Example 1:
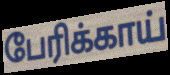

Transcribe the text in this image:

பேரிக்காய்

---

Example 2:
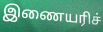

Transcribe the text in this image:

இணையரிச்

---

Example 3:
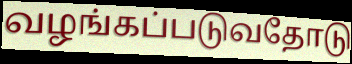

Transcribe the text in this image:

வழங்கப்படுவதோடு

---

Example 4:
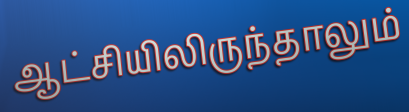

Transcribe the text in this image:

ஆட்சியிலிருந்தாலும்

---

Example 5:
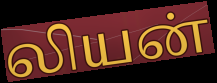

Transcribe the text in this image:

லியன்